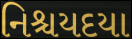
નિશ્ચયદયા